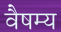
वैषम्य